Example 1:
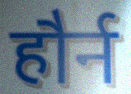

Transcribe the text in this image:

हौर्न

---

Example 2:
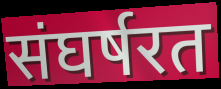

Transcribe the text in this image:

संघर्षरत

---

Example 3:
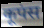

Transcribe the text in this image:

कूपंस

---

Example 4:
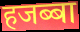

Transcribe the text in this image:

हजब्बा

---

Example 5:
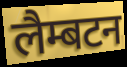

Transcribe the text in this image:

लैम्बटन